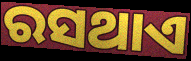
ରସଥାଏ